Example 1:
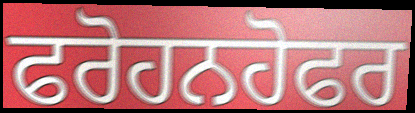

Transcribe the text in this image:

ਫਰੋਹਨਹੋਫਰ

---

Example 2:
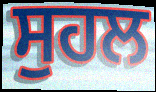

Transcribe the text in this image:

ਸੁਹਲ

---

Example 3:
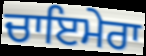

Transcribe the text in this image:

ਚਾਇਮੇਰਾ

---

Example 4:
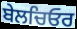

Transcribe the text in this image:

ਬੇਲਚਿਓਰ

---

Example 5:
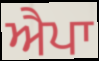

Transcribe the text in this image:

ਐਪਾ